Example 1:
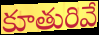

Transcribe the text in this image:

కూతురివే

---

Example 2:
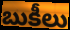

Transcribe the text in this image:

బుకీలు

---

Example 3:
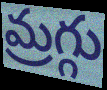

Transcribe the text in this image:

మ్రగ్గు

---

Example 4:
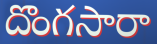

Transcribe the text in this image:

దొంగసారా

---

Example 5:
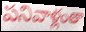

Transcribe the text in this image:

పనివాళ్లంతా